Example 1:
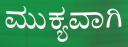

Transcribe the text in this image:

ಮುಕ್ಯವಾಗಿ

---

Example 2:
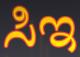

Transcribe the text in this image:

ಸಿಇ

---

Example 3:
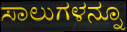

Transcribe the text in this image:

ಸಾಲುಗಳನ್ನೂ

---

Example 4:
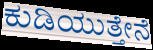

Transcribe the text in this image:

ಕುಡಿಯುತ್ತೇನೆ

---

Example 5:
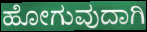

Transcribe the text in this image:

ಹೋಗುವುದಾಗಿ